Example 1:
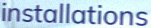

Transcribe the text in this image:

installations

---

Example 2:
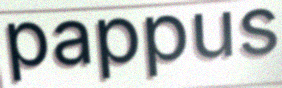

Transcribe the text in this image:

pappus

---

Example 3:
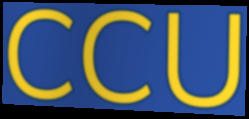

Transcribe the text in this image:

CCU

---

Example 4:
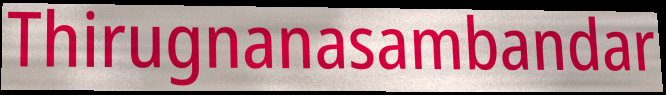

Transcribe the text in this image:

Thirugnanasambandar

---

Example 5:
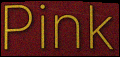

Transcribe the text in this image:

Pink